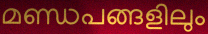
മണ്ഡപങ്ങളിലും